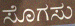
ಸೊಗಸು